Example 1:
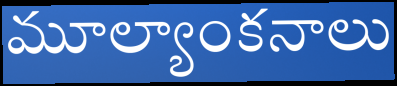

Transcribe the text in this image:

మూల్యాంకనాలు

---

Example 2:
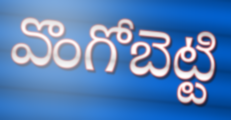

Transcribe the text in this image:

వొంగోబెట్టి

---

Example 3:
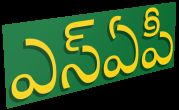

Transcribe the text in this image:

ఎస్ఏపీ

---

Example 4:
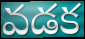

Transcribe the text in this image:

వడక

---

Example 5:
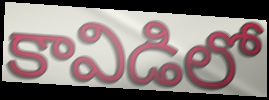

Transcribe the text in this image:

కావిడిలో